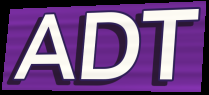
ADT